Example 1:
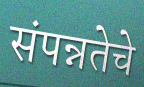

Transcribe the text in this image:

संपन्नतेचे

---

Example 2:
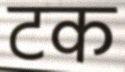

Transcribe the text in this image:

टक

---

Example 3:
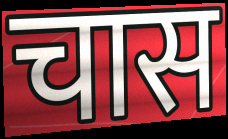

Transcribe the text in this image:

चास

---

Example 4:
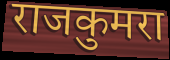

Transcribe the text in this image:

राजकुमरा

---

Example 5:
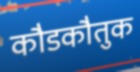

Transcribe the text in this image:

कौडकौतुक